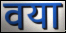
वया